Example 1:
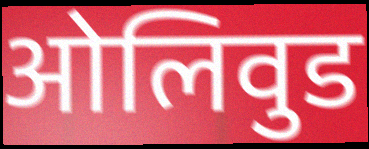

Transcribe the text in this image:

ओलिवुड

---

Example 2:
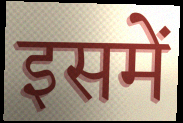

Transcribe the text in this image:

इसमें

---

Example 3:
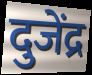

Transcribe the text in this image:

दुजेंद्र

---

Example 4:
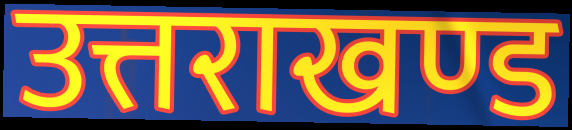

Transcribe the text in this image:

उत्तराखण्ड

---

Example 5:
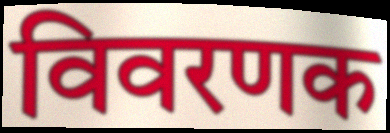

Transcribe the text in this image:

विवरणक